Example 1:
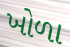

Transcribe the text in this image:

ખોળા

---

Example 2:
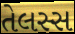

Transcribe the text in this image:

તેલસ્સ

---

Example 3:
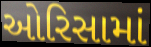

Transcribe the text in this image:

ઓરિસામાં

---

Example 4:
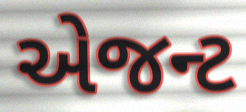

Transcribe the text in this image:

એજન્ટ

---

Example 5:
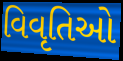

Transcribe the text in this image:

વિવૃતિઓ